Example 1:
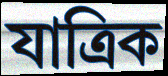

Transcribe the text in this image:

যাত্ৰিক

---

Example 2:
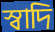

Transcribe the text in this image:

স্বাদি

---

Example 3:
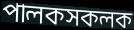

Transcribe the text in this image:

পালকসকলক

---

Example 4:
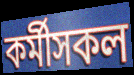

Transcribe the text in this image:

কৰ্মীসকল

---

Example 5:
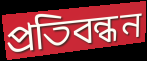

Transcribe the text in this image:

প্ৰতিবন্ধন